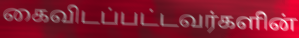
கைவிடப்பட்டவர்களின்